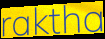
raktha